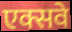
एक्सवे